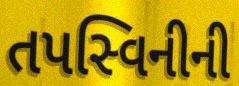
તપસ્વિનીની